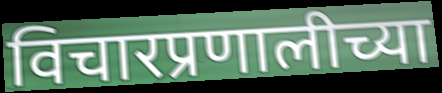
विचारप्रणालीच्या